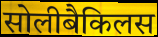
सोलीबैकिलस